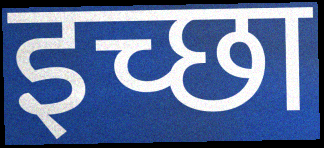
इच्‍छा